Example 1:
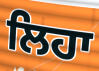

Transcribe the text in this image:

ਲਿਹਾ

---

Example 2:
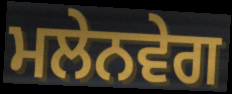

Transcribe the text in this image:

ਮਲੇਨਵੇਗ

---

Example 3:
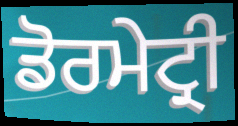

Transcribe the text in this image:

ਡੋਰਮੇਟ੍ਰੀ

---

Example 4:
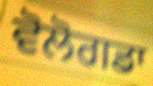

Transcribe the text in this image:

ਵੋਲੋਗਡਾ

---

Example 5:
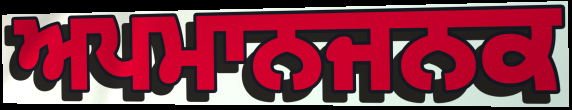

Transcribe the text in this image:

ਅਪਮਾਨਜਨਕ